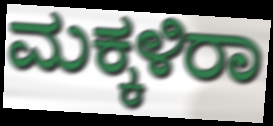
ಮಕ್ಕಳಿರಾ